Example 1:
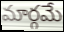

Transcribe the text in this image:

మార్గమే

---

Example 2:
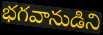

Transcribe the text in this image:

భగవానుడిని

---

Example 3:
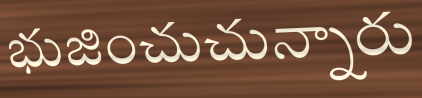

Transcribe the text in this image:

భుజించుచున్నారు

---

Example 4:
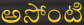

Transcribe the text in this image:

అసోంటి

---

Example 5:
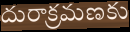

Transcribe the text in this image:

దురాక్రమణకు